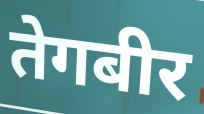
तेगबीर